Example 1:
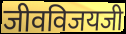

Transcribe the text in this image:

जीवविजयजी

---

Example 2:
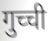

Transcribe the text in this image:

गुच्ची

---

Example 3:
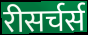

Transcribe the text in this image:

रीसर्चर्स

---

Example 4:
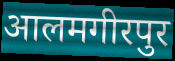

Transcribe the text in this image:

आलमगीरपुर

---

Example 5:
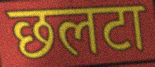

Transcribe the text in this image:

छलटा